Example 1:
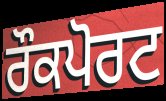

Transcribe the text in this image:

ਰੌਕਪੋਰਟ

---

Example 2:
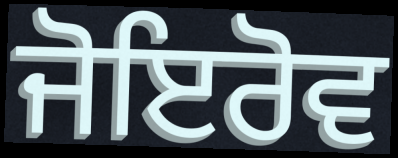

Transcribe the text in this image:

ਜੋਇਰੋਵ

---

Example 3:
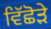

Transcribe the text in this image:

ਵਿੱਛੋੜੇ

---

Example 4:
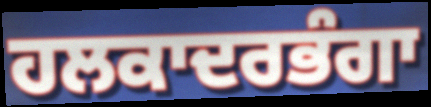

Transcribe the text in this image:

ਹਲਕਾਦਰਭੰਗਾ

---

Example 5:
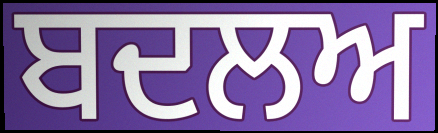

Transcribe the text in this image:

ਬਦਲਅ